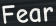
Fear